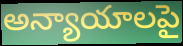
అన్యాయాలపై